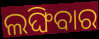
ଲଙ୍ଘିବାର